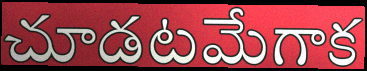
చూడటమేగాక